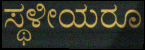
ಸ್ಥಳೀಯರೂ